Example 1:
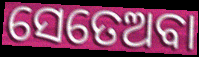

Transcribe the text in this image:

ସେତେଅବା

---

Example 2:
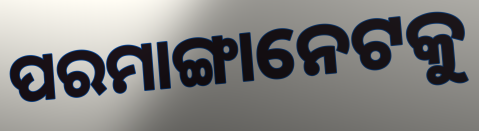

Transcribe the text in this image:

ପରମାଙ୍ଗାନେଟକୁ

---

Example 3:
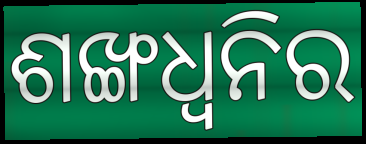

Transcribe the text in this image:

ଶଙ୍ଖଧ୍ବନିର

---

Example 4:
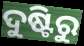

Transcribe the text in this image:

ଦୁଷ୍ଟିରୁ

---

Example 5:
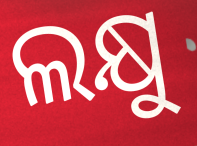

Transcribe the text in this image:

ଲକ୍ଷୁ